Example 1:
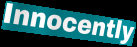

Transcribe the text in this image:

Innocently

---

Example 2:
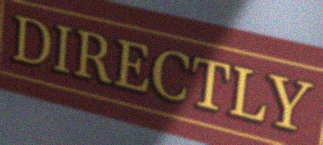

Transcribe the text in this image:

DIRECTLY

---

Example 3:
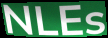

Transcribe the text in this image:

NLEs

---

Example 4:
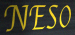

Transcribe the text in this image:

NESO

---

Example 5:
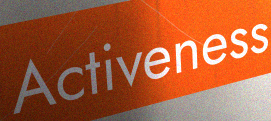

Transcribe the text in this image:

Activeness